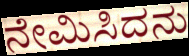
ನೇಮಿಸಿದನು